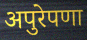
अपुरेपणा